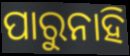
ପାରୁନାହି